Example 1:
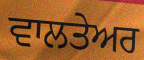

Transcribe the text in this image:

ਵਾਲਤੇਅਰ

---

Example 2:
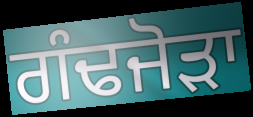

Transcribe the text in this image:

ਗੰਢਜੋੜਾ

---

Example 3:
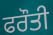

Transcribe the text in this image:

ਫਰੌਤੀ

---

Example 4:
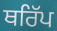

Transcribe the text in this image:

ਥਰਿੱਪ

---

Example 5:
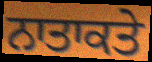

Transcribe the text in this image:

ਨਾਤਾਕਤੇ